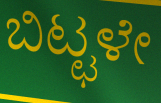
ಬಿಟ್ಟಳೇ